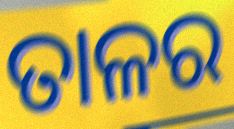
ତାଳର